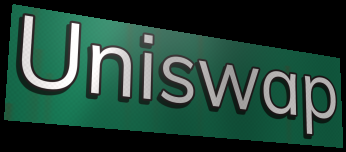
Uniswap